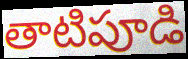
తాటిపూడి